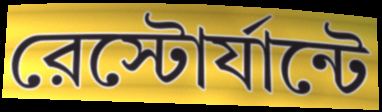
রেস্টোর্যান্টে